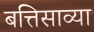
बत्तिसाव्या